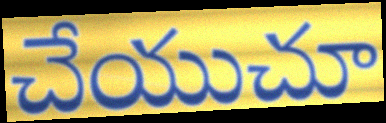
చేయుచూ